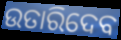
ଉତାରିଦେବ